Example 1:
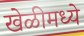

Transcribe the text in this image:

खेळीमध्ये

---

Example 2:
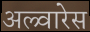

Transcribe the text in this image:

अल्वारेस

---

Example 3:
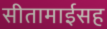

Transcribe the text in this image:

सीतामाईसह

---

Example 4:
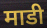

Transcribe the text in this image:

माडी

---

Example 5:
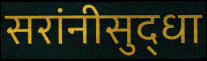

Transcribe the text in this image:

सरांनीसुद्धा